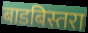
बाडबिस्तरा